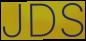
JDS